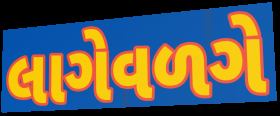
લાગેવળગે